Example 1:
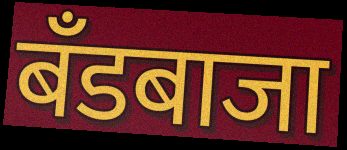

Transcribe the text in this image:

बँडबाजा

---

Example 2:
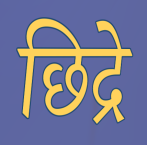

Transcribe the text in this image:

छिद्रे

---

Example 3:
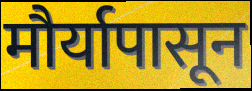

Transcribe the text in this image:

मौर्यापासून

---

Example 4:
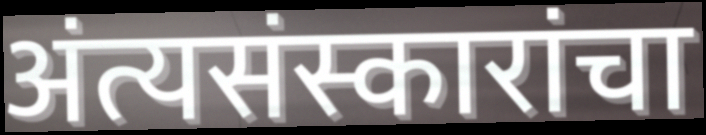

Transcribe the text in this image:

अंत्यसंस्कारांचा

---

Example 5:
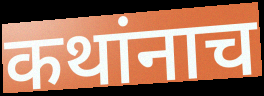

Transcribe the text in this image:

कथांनाच